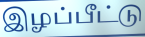
இழப்பீட்டு